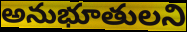
అనుభూతులని